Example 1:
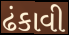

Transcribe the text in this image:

ઢંકાવી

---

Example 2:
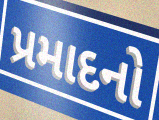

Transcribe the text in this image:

પ્રમાદનો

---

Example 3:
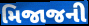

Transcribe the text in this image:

મિજાજની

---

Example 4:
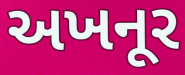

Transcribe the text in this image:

અખનૂર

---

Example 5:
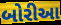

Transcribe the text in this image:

બોરીઆ